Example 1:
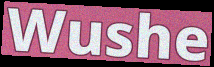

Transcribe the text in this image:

Wushe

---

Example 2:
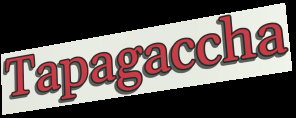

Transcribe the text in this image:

Tapagaccha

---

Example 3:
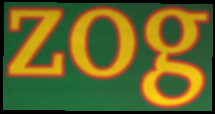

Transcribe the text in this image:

zog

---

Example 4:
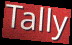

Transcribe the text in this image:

Tally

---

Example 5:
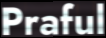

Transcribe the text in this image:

Praful